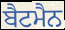
ਬੈਟਮੈਨ